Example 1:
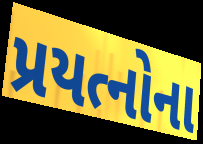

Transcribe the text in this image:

પ્રયત્નોના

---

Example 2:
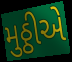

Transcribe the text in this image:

મુઠ્ઠીએ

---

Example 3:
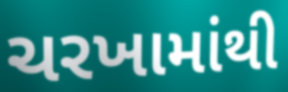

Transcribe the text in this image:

ચરખામાંથી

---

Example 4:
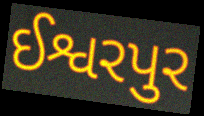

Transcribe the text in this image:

ઈશ્વરપુર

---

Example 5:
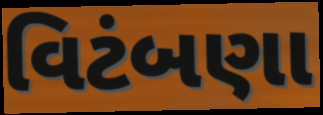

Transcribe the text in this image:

વિટંબણા